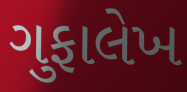
ગુફાલેખ